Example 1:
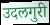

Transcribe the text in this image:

उदलगुरी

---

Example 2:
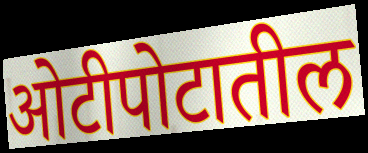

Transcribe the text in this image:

ओटीपोटातील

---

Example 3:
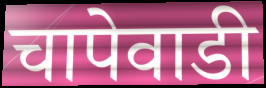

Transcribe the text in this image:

चापेवाडी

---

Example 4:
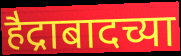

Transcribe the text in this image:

हैद्राबादच्या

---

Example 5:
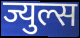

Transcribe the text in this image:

ज्युल्स